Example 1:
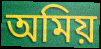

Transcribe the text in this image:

অমিয়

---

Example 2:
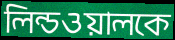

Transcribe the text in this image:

লিন্ডওয়ালকে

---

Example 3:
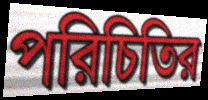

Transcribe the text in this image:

পরিচিতির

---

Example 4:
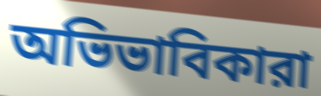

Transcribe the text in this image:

অভিভাবিকারা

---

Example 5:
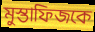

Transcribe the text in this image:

মুস্তাফিজকে